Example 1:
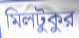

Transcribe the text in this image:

মিলটুকুর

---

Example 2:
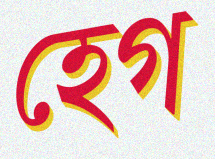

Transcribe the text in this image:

হেগ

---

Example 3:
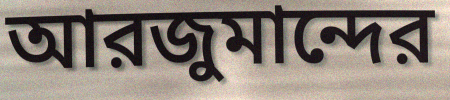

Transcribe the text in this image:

আরজুমান্দের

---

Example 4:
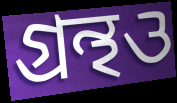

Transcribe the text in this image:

গ্রন্থও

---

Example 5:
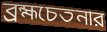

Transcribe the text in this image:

ব্রহ্মচেতনার